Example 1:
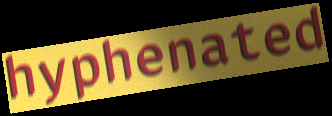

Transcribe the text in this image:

hyphenated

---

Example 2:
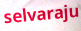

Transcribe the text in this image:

selvaraju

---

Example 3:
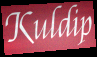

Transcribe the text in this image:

Kuldip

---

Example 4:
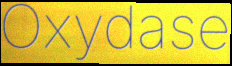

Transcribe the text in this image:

Oxydase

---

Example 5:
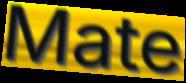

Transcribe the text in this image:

Mate